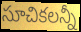
సూచికలన్నీ